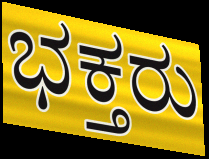
ಭಕ್ತರು